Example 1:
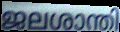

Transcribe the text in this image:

ജലശാന്തി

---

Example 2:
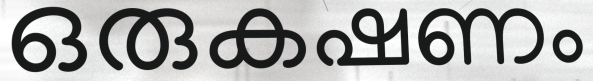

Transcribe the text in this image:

ഒരുകഷണം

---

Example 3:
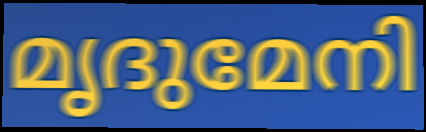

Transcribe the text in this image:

മൃദുമേനി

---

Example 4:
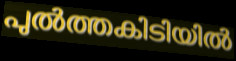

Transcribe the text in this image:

പുൽത്തകിടിയിൽ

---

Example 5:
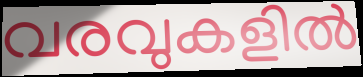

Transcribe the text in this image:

വരവുകളിൽ